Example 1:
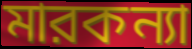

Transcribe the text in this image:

মারকন্যা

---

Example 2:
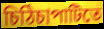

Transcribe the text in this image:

চিঠিচাপাটিতে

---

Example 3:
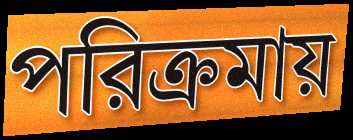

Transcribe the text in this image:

পরিক্রমায়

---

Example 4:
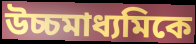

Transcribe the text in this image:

উচ্চমাধ্যমিকে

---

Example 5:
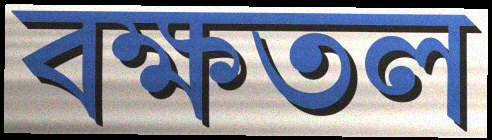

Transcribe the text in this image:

বক্ষতল